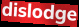
dislodge